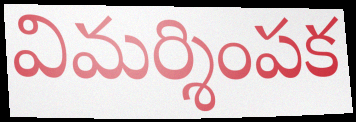
విమర్శింపక